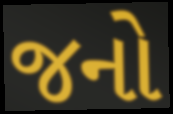
જનો